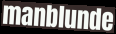
manblunde